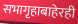
सभागृहाबाहेरही